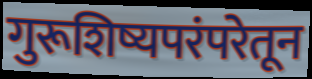
गुरूशिष्यपरंपरेतून